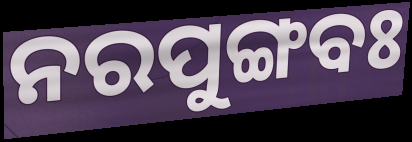
ନରପୁଙ୍ଗବଃ